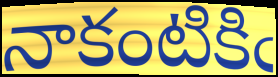
నాకంటికిఁ